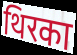
थिरका